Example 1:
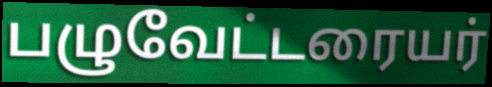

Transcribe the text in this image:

பழுவேட்டரையர்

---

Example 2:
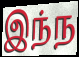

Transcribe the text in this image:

இந்ந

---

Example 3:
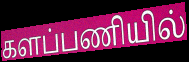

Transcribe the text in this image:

களப்பணியில்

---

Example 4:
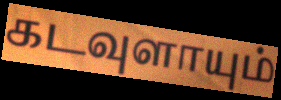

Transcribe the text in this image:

கடவுளாயும்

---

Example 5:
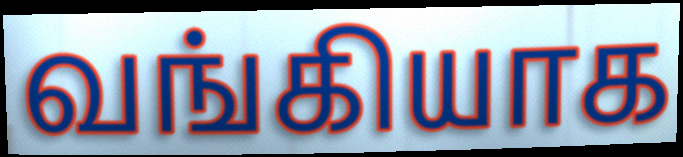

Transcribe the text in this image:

வங்கியாக